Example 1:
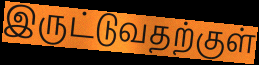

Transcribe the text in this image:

இருட்டுவதற்குள்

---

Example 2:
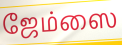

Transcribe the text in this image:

ஜேம்ஸை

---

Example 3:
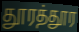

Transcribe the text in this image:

தூரத்தூர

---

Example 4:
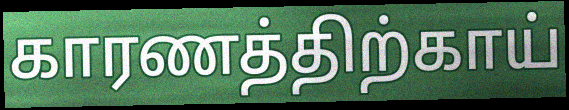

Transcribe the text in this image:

காரணத்திற்காய்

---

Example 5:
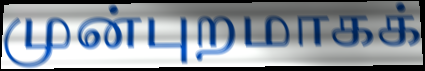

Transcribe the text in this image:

முன்புறமாகக்